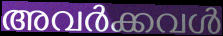
അവർക്കവൾ